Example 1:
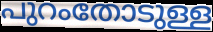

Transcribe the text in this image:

പുറംതോടുള്ള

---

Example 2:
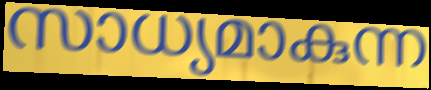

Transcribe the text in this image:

സാധ്യമാകുന്ന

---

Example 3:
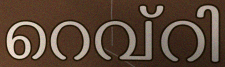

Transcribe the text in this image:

റെവ്റി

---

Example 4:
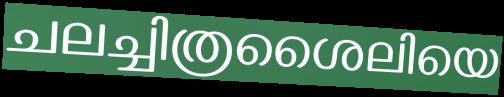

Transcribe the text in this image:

ചലച്ചിത്രശൈലിയെ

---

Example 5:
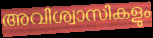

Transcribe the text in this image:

അവിശ്വാസികളും